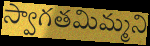
స్వాగతమిమ్మని